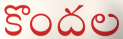
కొందల